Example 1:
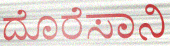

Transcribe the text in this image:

ದೊರೆಸಾನಿ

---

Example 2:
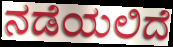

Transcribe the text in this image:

ನಡೆಯಲಿದೆ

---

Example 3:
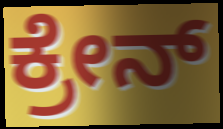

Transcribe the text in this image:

ಕ್ರೇನ್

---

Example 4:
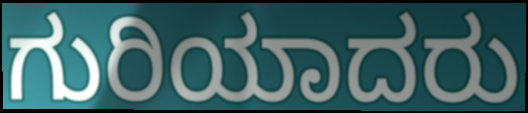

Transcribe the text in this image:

ಗುರಿಯಾದರು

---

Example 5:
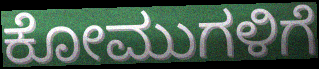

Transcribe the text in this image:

ಕೋಮುಗಳಿಗೆ